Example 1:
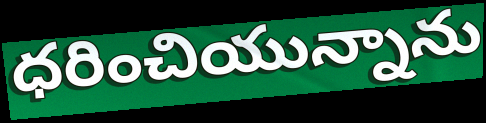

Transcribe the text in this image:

ధరించియున్నాను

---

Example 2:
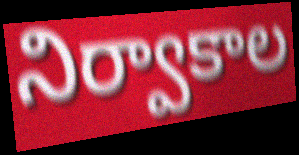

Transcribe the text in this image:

నిర్వాకాల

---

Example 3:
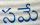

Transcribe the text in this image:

సమే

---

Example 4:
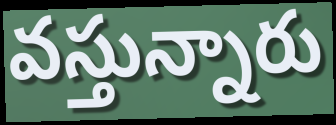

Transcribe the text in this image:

వస్తున్నారు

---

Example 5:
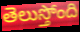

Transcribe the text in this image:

తెలుస్తోంది